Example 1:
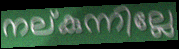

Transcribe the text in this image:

നല്കുന്നില്ലേ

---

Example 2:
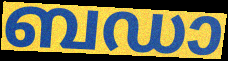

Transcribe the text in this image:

ബഡാ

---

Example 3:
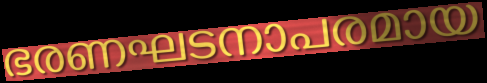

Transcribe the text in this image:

ഭരണഘടനാപരമായ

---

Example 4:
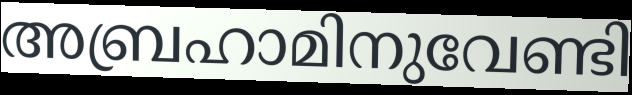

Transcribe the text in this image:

അബ്രഹാമിനുവേണ്ടി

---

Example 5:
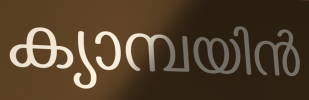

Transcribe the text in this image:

ക്യാമ്പയിൻ